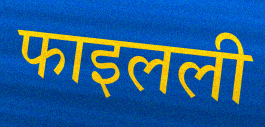
फाइलली